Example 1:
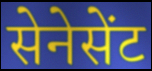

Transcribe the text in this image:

सेनेसेंट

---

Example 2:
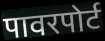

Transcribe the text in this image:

पावरपोर्ट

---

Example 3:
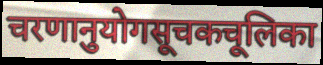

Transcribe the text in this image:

चरणानुयोगसूचकचूलिका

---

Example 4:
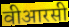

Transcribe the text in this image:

वीआरसी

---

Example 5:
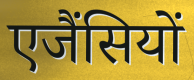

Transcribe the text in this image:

एजैंसियों